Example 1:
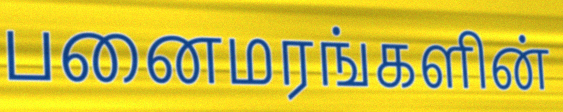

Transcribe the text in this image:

பனைமரங்களின்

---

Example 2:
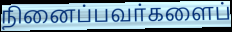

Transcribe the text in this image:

நினைப்பவர்களைப்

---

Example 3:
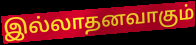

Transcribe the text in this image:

இல்லாதனவாகும்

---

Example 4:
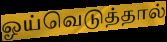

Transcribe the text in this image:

ஓய்வெடுத்தால்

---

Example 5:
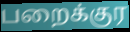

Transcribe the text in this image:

பறைக்குர